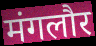
मंगलौर